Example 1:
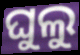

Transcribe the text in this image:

ଘୁଲୁ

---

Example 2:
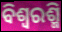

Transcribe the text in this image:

ବିଶ୍ୱରଶ୍ମି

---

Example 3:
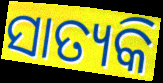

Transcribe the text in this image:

ସାତ୍ୟକି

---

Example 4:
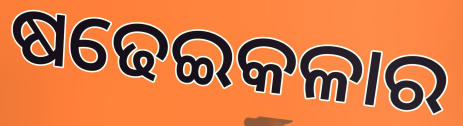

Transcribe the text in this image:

ଷଢେଇକଳାର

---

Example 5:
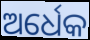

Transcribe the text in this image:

ଅର୍ଧେକ